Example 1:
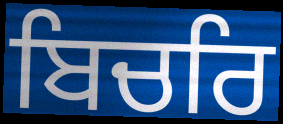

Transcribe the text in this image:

ਬਿਚਰਿ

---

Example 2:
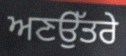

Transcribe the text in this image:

ਅਣਉੱਤਰੇ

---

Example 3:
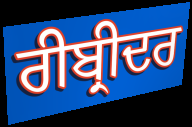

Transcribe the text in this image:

ਰੀਬ੍ਰੀਦਰ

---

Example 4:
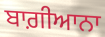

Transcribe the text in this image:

ਬਾਗ਼ੀਆਨਾ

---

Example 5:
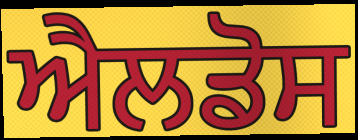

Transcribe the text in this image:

ਐਲਡੋਸ